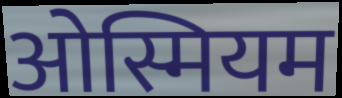
ओस्मियम